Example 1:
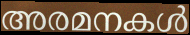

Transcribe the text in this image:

അരമനകൾ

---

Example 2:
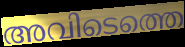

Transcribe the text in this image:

അവിടെത്തെ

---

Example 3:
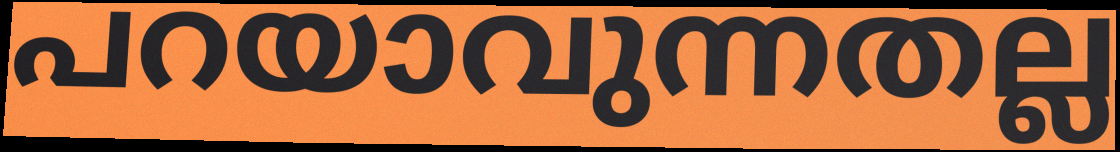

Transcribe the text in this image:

പറയാവുന്നതല്ല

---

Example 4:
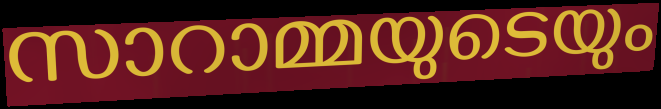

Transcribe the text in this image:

സാറാമ്മയുടെയും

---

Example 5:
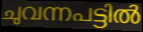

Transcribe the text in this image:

ചുവന്നപട്ടിൽ